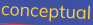
conceptual